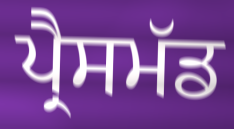
ਪ੍ਰੈਸਮੱਡ